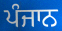
ਪੰਜਾਨ